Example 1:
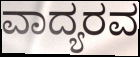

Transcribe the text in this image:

ವಾದ್ಯರವ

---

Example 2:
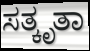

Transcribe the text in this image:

ಸತ್ಕೃತಾ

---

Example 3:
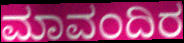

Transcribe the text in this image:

ಮಾವಂದಿರ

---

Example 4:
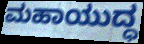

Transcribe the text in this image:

ಮಹಾಯುದ್ಧ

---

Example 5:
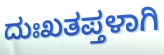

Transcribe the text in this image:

ದುಃಖತಪ್ತಳಾಗಿ